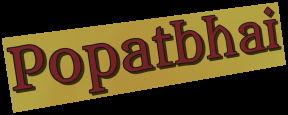
Popatbhai